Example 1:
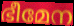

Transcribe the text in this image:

ഭീമേന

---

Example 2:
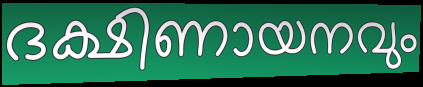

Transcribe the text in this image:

ദക്ഷിണായനവും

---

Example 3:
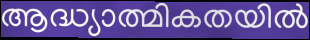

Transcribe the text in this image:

ആദ്ധ്യാത്മികതയിൽ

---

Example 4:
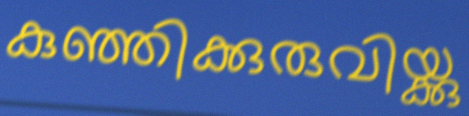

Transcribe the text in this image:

കുഞ്ഞിക്കുരുവിയ്ക്കു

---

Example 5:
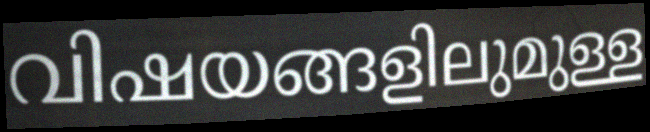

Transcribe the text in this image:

വിഷയങ്ങളിലുമുള്ള